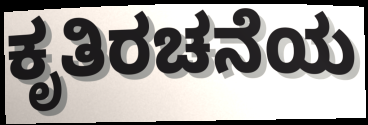
ಕೃತಿರಚನೆಯ